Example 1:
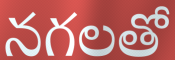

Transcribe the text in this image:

నగలతో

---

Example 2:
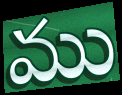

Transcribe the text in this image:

ము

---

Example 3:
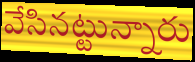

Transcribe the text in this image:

వేసినట్టున్నారు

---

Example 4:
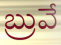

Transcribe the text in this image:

బ్రువే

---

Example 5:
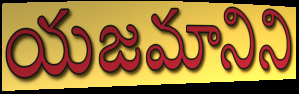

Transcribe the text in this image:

యజమానిని